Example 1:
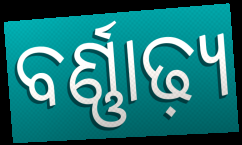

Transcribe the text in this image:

ବର୍ଣ୍ଣାଢ଼୍ୟ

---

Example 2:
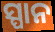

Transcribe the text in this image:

ସ୍ପାନ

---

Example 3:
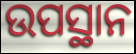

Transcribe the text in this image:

ଉପସ୍ଥାନ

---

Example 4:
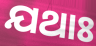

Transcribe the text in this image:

ଯଥାଃ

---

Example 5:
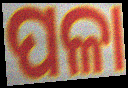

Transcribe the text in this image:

ପଳା